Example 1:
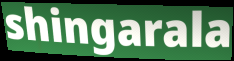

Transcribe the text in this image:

shingarala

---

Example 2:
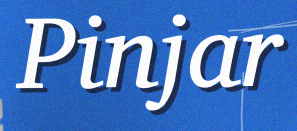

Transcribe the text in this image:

Pinjar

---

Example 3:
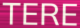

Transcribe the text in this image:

TERE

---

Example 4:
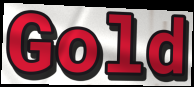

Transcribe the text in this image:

Gold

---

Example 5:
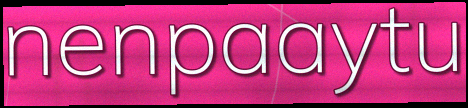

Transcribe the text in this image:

nenpaaytu